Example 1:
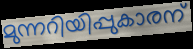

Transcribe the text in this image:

മുന്നറിയിപ്പുകാരന്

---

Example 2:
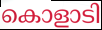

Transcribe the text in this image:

കൊളാടി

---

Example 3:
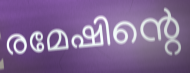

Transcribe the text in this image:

രമേഷിന്റെ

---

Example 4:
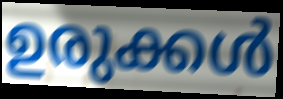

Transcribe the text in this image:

ഉരുക്കൾ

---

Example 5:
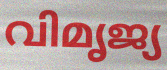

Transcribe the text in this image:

വിമൃജ്യ